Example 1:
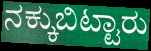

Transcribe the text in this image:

ನಕ್ಕುಬಿಟ್ಟಾರು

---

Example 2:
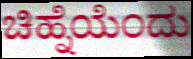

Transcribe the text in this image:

ಚಿಹ್ನೆಯೆಂದು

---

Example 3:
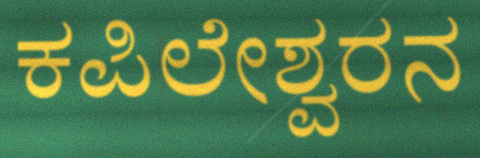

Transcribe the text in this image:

ಕಪಿಲೇಶ್ವರನ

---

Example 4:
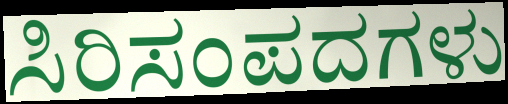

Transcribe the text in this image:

ಸಿರಿಸಂಪದಗಳು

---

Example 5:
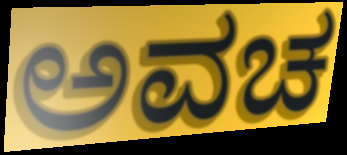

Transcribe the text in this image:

ಅವಚ